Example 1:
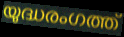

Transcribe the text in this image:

യുദ്ധരംഗത്ത്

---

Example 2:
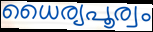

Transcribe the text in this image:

ധൈര്യപൂര്വം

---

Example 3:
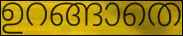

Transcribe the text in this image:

ഉറങ്ങാതെ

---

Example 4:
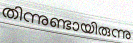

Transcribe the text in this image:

തിന്നുണ്ടായിരുന്നു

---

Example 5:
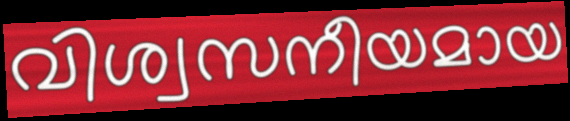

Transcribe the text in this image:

വിശ്വസനീയമായ